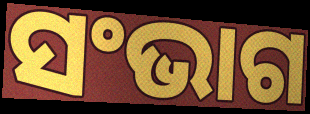
ସଂଭାଗ